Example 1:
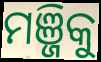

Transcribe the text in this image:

ମଞ୍ଜିକୁ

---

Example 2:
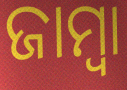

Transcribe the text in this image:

ଜାମ୍ବା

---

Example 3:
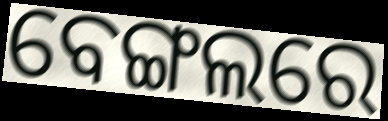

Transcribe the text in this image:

ବେଙ୍ଗଲରେ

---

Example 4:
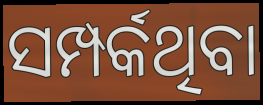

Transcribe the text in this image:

ସମ୍ପର୍କଥିବା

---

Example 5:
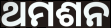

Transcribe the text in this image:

ଥମଶନ